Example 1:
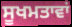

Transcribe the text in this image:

ਸੂਖਮਤਾਵਾਂ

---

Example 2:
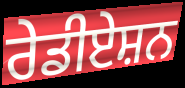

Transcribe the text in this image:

ਰੇਡੀਏਸ਼ਨ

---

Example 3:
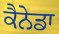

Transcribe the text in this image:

ਕੈਨੇਡਾ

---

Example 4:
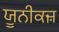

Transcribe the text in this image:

ਯੂਨੀਕਜ਼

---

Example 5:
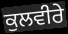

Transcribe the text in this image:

ਕੁਲਵੀਰੇ